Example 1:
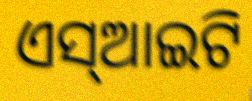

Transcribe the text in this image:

ଏସ୍ଆଇଟି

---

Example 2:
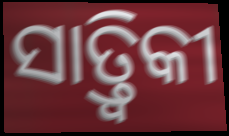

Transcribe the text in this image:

ସାତ୍ତ୍ୱିକୀ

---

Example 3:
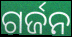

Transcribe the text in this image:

ଗର୍ଜନ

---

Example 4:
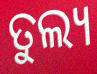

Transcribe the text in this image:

ତୁଲ୍ୟ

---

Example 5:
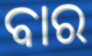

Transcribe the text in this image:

ବାର